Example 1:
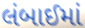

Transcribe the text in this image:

લંબાઈમાં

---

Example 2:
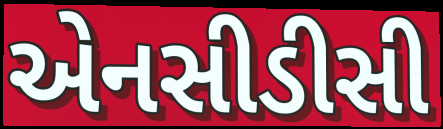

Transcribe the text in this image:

એનસીડીસી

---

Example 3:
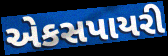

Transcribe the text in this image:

એકસપાયરી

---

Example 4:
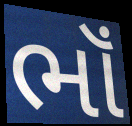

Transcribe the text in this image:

ભૉં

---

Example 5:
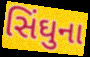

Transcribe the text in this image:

સિંઘુના